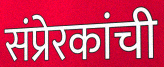
संप्रेरकांची